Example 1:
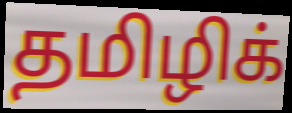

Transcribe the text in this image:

தமிழிக்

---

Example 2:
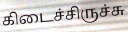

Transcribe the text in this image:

கிடைச்சிருச்சு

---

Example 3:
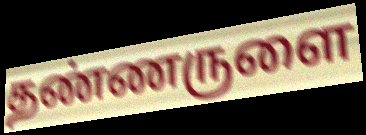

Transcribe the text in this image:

தண்ணருளை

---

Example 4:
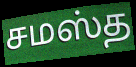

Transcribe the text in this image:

சமஸ்த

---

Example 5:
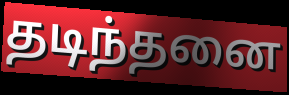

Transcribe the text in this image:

தடிந்தனை